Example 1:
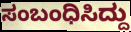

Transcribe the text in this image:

ಸಂಬಂಧಿಸಿದ್ದು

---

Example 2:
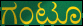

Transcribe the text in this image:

ಗಂಟೂ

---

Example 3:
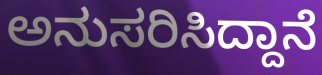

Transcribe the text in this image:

ಅನುಸರಿಸಿದ್ದಾನೆ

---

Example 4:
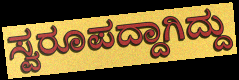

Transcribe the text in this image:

ಸ್ವರೂಪದ್ದಾಗಿದ್ದು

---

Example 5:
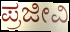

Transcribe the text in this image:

ಪ್ರಜೀವಿ